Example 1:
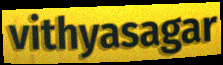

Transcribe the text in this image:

vithyasagar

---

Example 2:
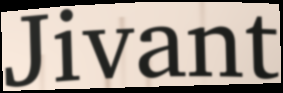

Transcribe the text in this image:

Jivant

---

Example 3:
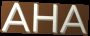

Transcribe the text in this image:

AHA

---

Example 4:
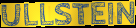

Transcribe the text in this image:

ULLSTEIN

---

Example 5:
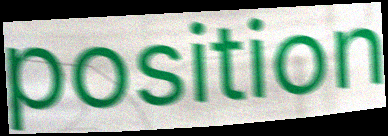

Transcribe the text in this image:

position